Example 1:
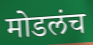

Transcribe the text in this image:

मोडलंच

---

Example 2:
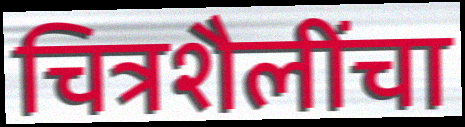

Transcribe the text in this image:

चित्रशैलींचा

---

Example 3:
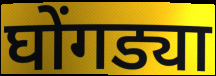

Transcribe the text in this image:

घोंगड्या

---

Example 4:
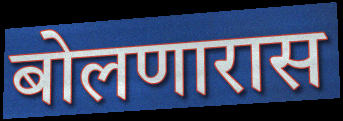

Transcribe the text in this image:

बोलणारास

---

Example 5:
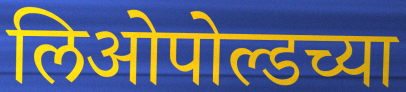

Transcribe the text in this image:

लिओपोल्डच्या